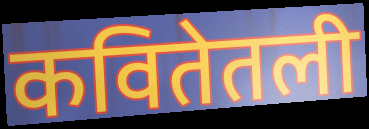
कवितेतली